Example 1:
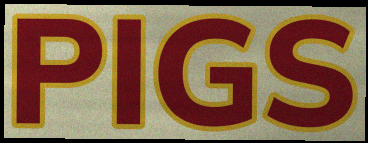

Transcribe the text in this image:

PIGS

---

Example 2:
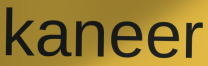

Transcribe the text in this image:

kaneer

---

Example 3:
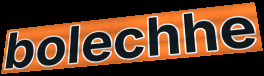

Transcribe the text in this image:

bolechhe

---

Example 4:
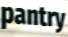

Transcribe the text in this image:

pantry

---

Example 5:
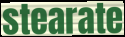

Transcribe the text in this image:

stearate